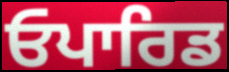
ਓਪਾਰਿਡ